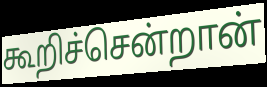
கூறிச்சென்றான்